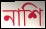
নাশি